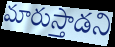
మారుస్తాడని